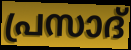
പ്രസാദ്